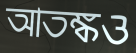
আতঙ্কও